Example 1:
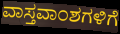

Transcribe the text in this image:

ವಾಸ್ತವಾಂಶಗಳಿಗೆ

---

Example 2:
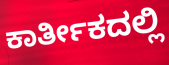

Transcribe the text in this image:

ಕಾರ್ತೀಕದಲ್ಲಿ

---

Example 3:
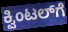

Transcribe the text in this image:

ಕ್ವಿಂಟಲ್‌ಗೆ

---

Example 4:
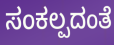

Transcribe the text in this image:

ಸಂಕಲ್ಪದಂತೆ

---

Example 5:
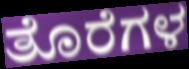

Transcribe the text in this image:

ತೊರೆಗಳ